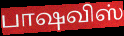
பாஷவிஸ்